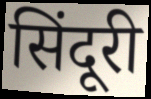
सिंदूरी